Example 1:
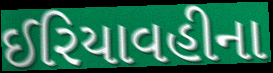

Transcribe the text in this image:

ઈરિયાવહીના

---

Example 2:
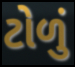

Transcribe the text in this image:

ટોળું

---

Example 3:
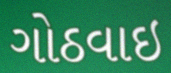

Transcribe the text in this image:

ગોઠવાઇ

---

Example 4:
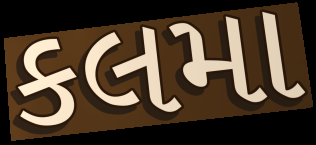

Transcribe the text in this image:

કલમા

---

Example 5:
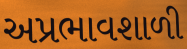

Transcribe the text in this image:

અપ્રભાવશાળી